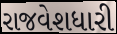
રાજવેશધારી